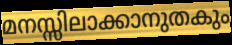
മനസ്സിലാക്കാനുതകും